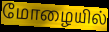
மோழையில்